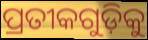
ପ୍ରତୀକଗୁଡ଼ିକୁ